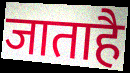
जाताहै